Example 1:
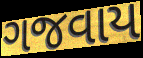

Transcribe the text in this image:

ગજવાય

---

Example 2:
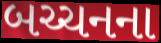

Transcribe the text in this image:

બચ્ચનના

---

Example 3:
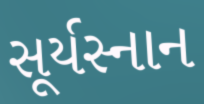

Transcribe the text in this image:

સૂર્યસ્નાન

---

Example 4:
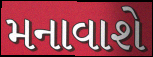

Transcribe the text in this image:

મનાવાશે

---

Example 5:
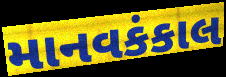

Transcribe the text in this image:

માનવકંકાલ